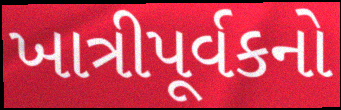
ખાત્રીપૂર્વકનો